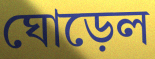
ঘোড়েল